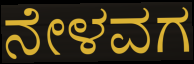
ನೇಳವಗ